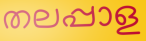
തലപ്പാള